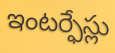
ఇంటర్ఫేస్లు